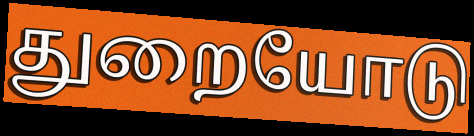
துறையோடு